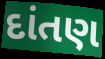
દાંતણ